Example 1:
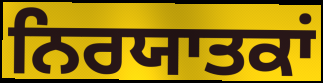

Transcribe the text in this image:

ਨਿਰਯਾਤਕਾਂ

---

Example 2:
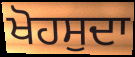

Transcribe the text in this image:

ਖੋਹਸੁਦਾ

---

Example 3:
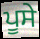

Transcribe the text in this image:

ਪੂਸੇ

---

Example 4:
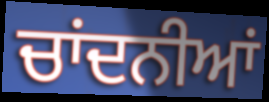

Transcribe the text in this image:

ਚਾਂਦਨੀਆਂ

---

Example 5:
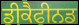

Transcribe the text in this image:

ਡੀਕੈਫੀਨਡ